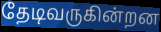
தேடிவருகின்றன